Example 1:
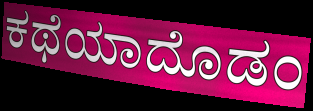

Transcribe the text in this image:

ಕಥೆಯಾದೊಡಂ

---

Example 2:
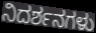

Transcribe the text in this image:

ನಿದರ್ಶನಗಳು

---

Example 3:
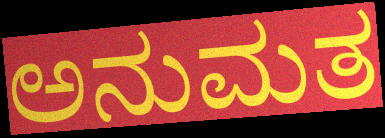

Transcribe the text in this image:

ಅನುಮತ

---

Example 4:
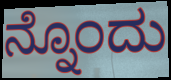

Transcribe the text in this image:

ನ್ನೊಂದು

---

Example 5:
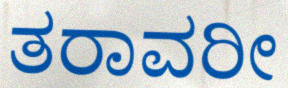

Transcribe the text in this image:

ತರಾವರೀ